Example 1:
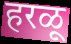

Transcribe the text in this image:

हरळू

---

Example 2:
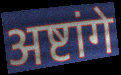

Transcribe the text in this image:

अष्टांगे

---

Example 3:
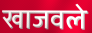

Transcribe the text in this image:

खाजवले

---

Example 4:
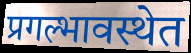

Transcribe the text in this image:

प्रगल्भावस्थेत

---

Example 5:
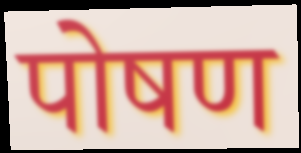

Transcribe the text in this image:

पोषण